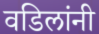
वडिलांनी